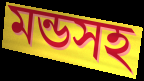
মন্ডসহ